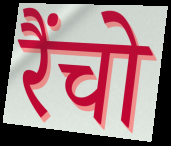
रैंचो